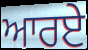
ਆਰਏ